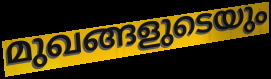
മുഖങ്ങളുടെയും